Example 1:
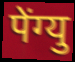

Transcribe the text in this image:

पेंग्यु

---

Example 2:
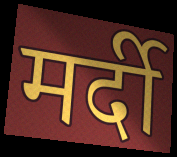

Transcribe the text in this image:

मर्दी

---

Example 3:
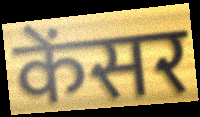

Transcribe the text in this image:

केंसर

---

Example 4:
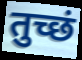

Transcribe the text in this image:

तुच्छं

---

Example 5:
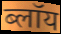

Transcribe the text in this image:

ब्लॉय